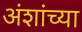
अंशांच्या